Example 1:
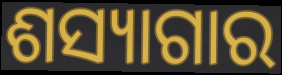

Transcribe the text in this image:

ଶସ୍ୟାଗାର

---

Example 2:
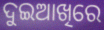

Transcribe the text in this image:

ଦୁଇଆଖିରେ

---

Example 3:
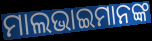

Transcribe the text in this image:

ମାଲଭାଇମାନଙ୍କ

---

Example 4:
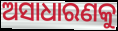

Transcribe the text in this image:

ଅସାଧାରଣକୁ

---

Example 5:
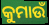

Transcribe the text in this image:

କୁମାଉଁ